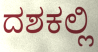
ದಶಕಲ್ಲಿ